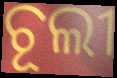
ଚୂଲୀ